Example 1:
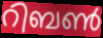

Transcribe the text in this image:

റിബൺ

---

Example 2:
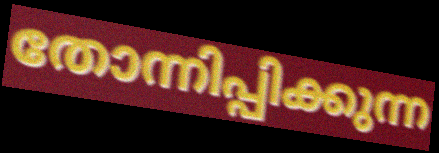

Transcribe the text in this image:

തോന്നിപ്പിക്കുന്ന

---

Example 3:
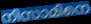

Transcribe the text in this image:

നിസാമിനെ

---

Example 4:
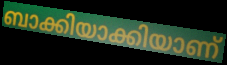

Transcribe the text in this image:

ബാക്കിയാക്കിയാണ്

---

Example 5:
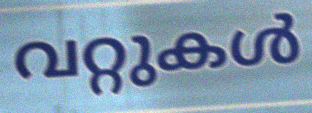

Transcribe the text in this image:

വറ്റുകൾ